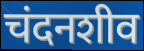
चंदनशीव